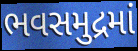
ભવસમુદ્રમાં